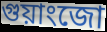
গুয়াংজো